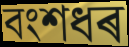
বংশধৰ